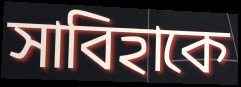
সাবিহাকে